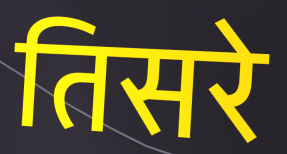
तिसरे